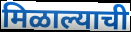
मिळाल्याची